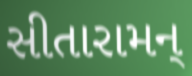
સીતારામન્